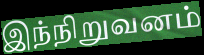
இந்நிறுவனம்